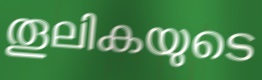
തൂലികയുടെ